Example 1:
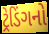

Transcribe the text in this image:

ટ્રેડિંગનો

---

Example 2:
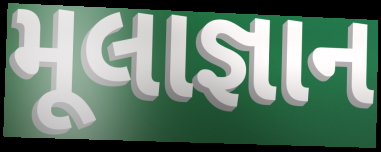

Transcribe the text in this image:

મૂલાજ્ઞાન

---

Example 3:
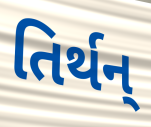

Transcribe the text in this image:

તિર્થન્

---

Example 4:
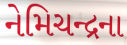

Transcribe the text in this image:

નેમિચન્દ્રના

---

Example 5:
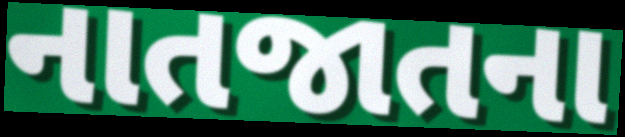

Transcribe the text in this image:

નાતજાતના